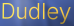
Dudley